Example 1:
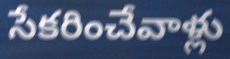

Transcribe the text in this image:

సేకరించేవాళ్లు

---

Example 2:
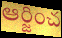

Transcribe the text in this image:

ఆర్జించ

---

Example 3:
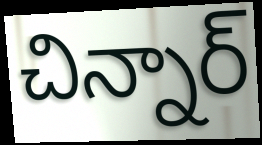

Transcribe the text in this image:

చిన్నార్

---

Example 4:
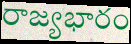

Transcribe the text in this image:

రాజ్యభారం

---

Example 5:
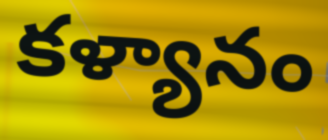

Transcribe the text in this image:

కళ్యానం